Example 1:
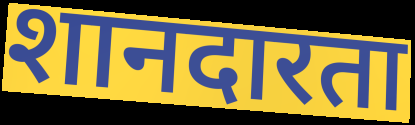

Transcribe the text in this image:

शानदारता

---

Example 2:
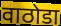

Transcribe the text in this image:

वाठोडा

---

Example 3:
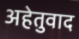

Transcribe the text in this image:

अहेतुवाद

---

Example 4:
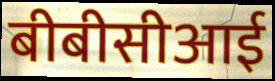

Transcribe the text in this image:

बीबीसीआई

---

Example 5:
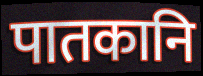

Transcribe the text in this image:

पातकानि